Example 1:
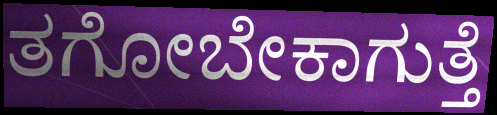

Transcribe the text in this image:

ತಗೋಬೇಕಾಗುತ್ತೆ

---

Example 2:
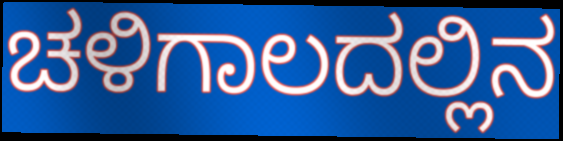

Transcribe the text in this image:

ಚಳಿಗಾಲದಲ್ಲಿನ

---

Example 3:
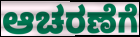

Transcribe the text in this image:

ಆಚರಣೆಗೆ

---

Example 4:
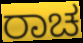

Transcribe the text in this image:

ರಾಚ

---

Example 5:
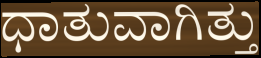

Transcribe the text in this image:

ಧಾತುವಾಗಿತ್ತು